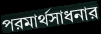
পরমার্থসাধনার